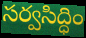
సర్వసిద్ధిం